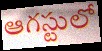
ఆగస్టులో